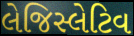
લેજિસ્લેટિવ